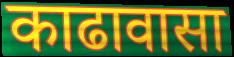
काढावासा